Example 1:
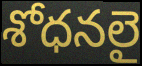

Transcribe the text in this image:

శోధనలై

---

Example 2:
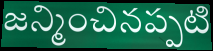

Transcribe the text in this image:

జన్మించినప్పటి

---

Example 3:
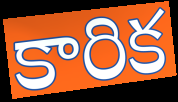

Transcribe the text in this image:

కారిక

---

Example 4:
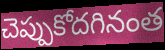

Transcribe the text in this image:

చెప్పుకోదగినంత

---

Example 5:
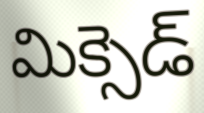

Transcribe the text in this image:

మిక్సెడ్